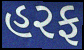
હરફ